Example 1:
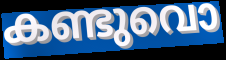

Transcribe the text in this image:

കണ്ടുവൊ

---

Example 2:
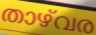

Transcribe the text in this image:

താഴ്‌വര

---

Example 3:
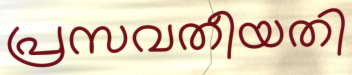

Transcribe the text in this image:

പ്രസവതീയതി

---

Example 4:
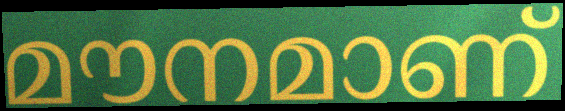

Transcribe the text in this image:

മൗനമാണ്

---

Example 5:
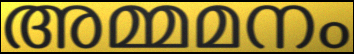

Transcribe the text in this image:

അമ്മമനം